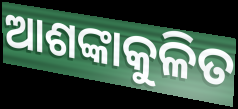
ଆଶଙ୍କାକୁଳିତ